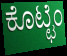
ಕೊಟ್ಟೆಂ